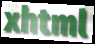
xhtml